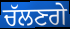
ਚੱਲਣਗੇ